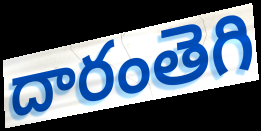
దారంతెగి